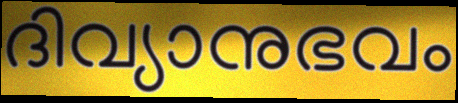
ദിവ്യാനുഭവം